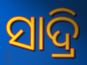
ସାଦ୍ରି